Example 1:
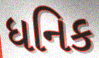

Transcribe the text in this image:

ધનિક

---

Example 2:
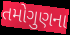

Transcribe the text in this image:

તમોગુણના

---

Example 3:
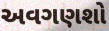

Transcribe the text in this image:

અવગણશો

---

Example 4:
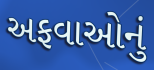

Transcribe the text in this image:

અફવાઓનું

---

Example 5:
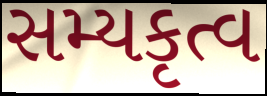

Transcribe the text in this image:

સમ્યકૃત્વ